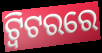
ଟ୍ବିଟରରେ